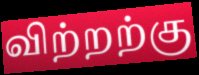
விற்றற்கு